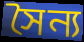
সৈন্য